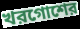
খরগোশের